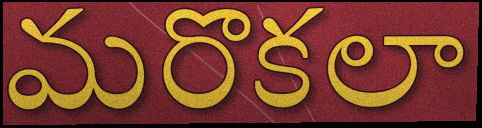
మరొకలా